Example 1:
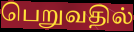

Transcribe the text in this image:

பெறுவதில்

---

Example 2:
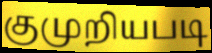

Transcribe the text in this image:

குமுறியபடி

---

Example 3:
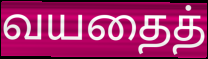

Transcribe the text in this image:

வயதைத்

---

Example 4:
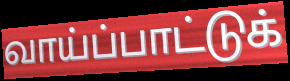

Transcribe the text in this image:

வாய்ப்பாட்டுக்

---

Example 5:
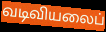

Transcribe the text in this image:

வடிவியலைப்